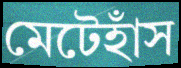
মেটেহাঁস